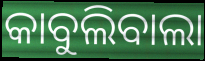
କାବୁଲିବାଲା